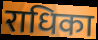
राधिका